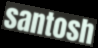
santosh